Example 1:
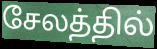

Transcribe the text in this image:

சேலத்தில்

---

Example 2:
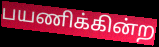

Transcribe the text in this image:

பயணிக்கின்ற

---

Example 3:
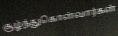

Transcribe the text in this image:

சூழ்ந்துகொள்வார்கள்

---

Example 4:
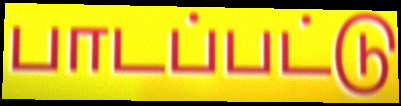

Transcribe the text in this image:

பாடப்பட்டு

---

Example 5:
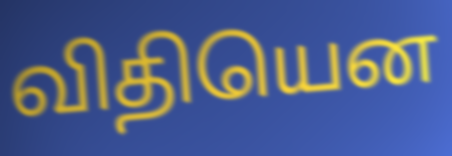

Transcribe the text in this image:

விதியென